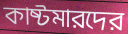
কাষ্টমারদের